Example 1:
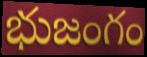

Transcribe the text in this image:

భుజంగం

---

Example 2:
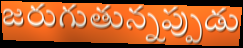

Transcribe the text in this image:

జరుగుతున్నప్పుడు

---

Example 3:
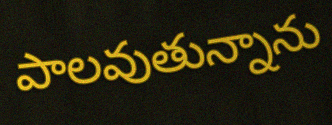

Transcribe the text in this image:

పాలవుతున్నాను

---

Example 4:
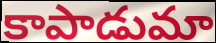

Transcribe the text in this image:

కాపాడుమా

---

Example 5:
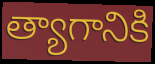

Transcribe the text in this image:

త్యాగానికి